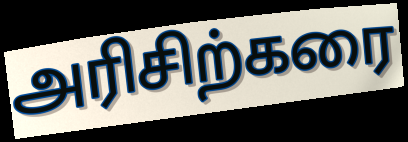
அரிசிற்கரை